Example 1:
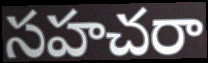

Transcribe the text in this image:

సహచరా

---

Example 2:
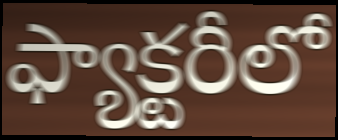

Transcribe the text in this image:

ఫ్యాక్టరీలో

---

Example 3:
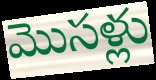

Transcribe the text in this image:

మొసళ్లు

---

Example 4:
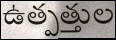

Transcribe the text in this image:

ఉత్పత్తుల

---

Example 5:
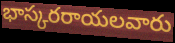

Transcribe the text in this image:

భాస్కరరాయలవారు